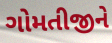
ગોમતીજીને